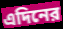
এদিনের